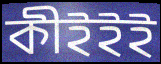
কীইইই